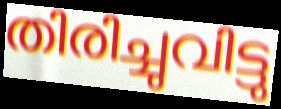
തിരിച്ചുവിട്ടു